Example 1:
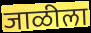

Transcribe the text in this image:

जाळीला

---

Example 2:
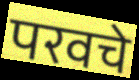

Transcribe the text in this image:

परवचे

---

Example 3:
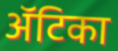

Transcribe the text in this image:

ॲटिका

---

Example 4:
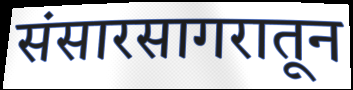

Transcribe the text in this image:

संसारसागरातून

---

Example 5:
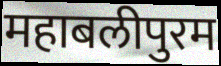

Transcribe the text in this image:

महाबलीपुरम